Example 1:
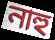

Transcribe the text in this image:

নাহু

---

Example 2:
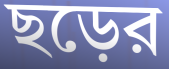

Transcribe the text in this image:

ছড়ের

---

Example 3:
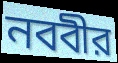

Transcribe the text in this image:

নববীর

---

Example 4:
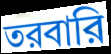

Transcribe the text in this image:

তরবারি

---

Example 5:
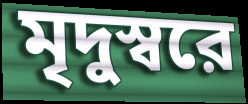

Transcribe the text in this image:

মৃদুস্বরে